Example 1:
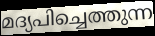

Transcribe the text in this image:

മദ്യപിച്ചെത്തുന്ന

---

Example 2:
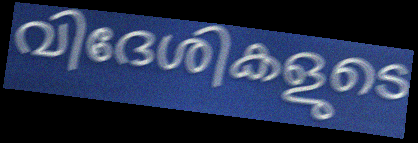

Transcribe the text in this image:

വിദേശികളുടെ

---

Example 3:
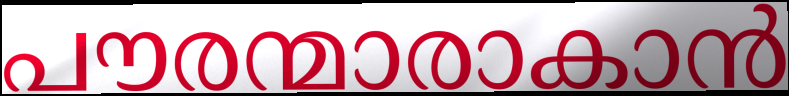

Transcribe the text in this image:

പൗരന്മാരാകാൻ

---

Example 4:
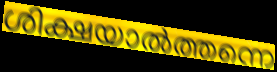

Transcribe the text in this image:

ശിക്ഷയാൽത്തന്നെ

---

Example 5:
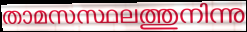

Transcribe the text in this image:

താമസസ്ഥലത്തുനിന്നു